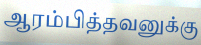
ஆரம்பித்தவனுக்கு